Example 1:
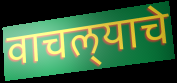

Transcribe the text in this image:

वाचल्याचे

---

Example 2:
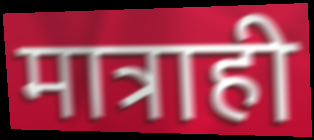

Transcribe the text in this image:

मात्राही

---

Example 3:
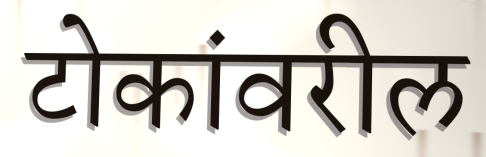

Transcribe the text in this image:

टोकांवरील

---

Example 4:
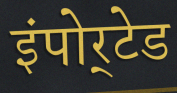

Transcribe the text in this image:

इंपोर्टेड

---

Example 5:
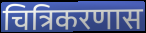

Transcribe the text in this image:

चित्रिकरणास